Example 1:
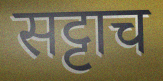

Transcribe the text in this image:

सट्टाच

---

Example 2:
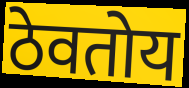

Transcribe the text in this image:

ठेवतोय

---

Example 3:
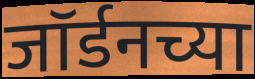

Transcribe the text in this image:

जॉर्डनच्या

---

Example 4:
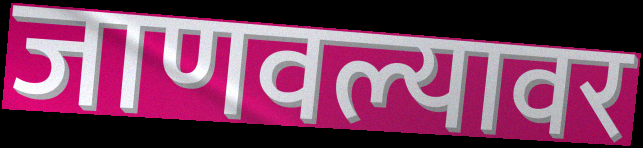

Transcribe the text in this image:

जाणवल्यावर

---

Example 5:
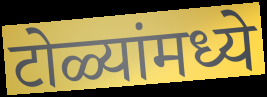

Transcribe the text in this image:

टोळ्यांमध्ये